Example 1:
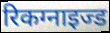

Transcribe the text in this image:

रिकग्नाइज्ड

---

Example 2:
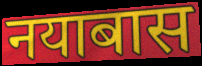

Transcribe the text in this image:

नयाबास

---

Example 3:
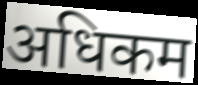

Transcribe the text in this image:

अधिकम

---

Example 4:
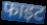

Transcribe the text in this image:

फाइट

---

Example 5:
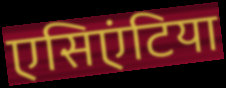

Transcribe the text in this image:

एसिएंटिया